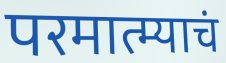
परमात्म्याचं